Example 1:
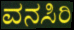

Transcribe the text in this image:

ವನಸಿರಿ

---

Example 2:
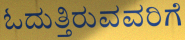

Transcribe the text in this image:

ಓದುತ್ತಿರುವವರಿಗೆ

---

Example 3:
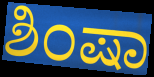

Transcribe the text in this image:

ಶಿಂಷಾ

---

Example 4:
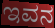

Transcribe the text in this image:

ಇವನ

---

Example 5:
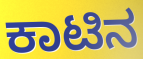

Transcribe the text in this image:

ಕಾಟಿನ